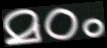
മഠം